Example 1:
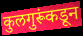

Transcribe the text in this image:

कुलगुरूंकडून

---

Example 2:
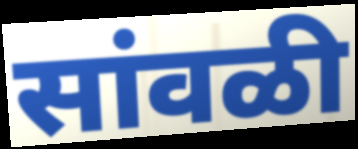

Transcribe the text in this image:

सांवळी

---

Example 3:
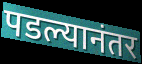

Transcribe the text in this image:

पडल्यानंतर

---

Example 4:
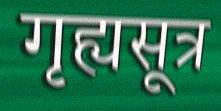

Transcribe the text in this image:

गृह्यसूत्र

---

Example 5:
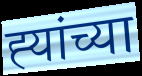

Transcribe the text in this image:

ह्‍यांच्या